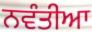
ਨਵੰਤੀਆ